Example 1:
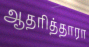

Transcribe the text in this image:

ஆதரித்தாரா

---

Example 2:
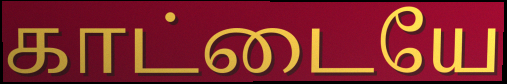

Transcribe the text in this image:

காட்டையே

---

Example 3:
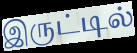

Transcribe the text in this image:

இருட்டில்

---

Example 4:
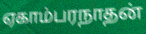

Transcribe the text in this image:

ஏகாம்பரநாதன்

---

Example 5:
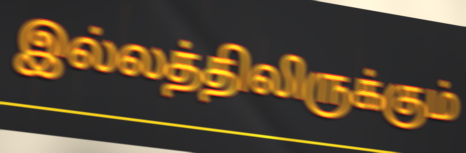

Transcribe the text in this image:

இல்லத்திலிருக்கும்